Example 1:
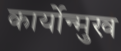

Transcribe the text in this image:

कार्योन्मुख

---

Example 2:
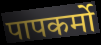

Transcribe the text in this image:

पापकर्मो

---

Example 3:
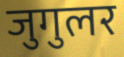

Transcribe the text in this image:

जुगुलर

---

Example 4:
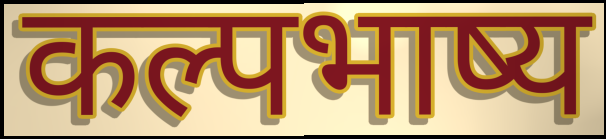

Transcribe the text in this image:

कल्पभाष्य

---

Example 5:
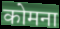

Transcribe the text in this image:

कोमना